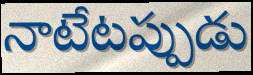
నాటేటప్పుడు